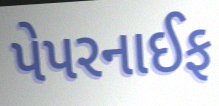
પેપરનાઈફ